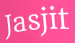
Jasjit